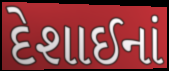
દેશાઈનાં